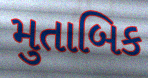
મુતાબિક